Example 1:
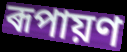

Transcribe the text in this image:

ৰূপায়ণ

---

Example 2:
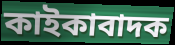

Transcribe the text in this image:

কাইকাবাদক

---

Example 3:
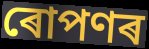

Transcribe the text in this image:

ৰোপণৰ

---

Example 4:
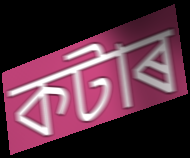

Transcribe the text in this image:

কটাৰ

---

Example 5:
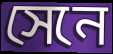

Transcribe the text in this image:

সেনে